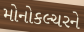
મોનોકલ્ચરને